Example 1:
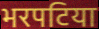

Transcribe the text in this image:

भरपटिया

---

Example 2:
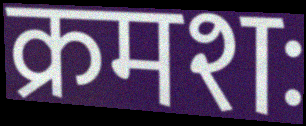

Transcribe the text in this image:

क्रमशः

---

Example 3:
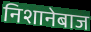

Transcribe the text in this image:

निशानेबाज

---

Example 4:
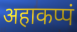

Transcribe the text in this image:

अहाकप्पं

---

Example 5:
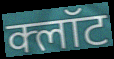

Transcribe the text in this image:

क्‍लॉट